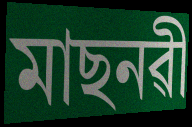
মাছনৱী